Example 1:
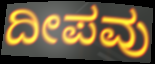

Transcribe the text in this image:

ದೀಪವು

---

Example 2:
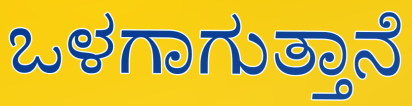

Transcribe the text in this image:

ಒಳಗಾಗುತ್ತಾನೆ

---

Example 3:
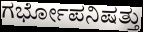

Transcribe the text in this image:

ಗರ್ಭೋಪನಿಷತ್ತು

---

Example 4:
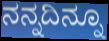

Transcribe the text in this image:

ನನ್ನದಿನ್ನೂ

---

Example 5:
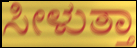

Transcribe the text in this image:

ಸೀಳುತ್ತಾ